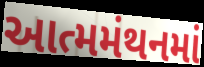
આત્મમંથનમાં